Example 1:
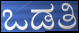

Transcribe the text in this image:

ಒಡತಿ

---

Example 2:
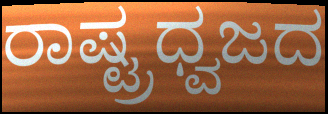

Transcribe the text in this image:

ರಾಷ್ಟ್ರಧ್ವಜದ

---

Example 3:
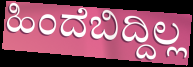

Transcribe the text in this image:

ಹಿಂದೆಬಿದ್ದಿಲ್ಲ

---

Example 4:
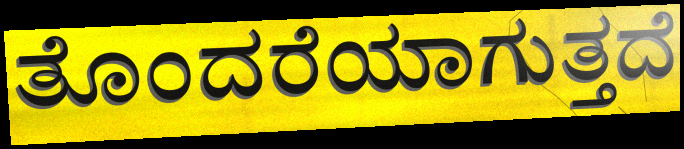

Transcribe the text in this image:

ತೊಂದರೆಯಾಗುತ್ತದೆ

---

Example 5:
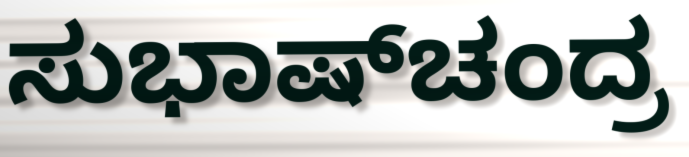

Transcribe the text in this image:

ಸುಭಾಷ್‌ಚಂದ್ರ